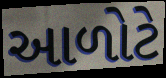
આળોટે